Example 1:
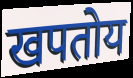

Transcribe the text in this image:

खपतोय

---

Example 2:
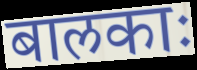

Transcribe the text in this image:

बालकाः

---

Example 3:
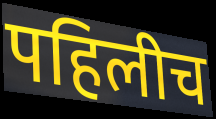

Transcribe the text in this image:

पहिलीच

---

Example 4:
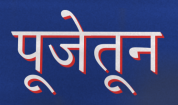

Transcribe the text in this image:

पूजेतून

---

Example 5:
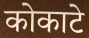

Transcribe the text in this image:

कोकाटे